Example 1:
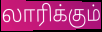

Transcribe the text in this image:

லாரிக்கும்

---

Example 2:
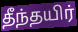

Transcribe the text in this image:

தீந்தயிர்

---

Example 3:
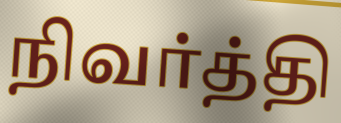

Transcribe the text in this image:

நிவர்த்தி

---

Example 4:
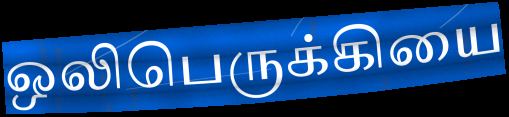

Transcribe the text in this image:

ஒலிபெருக்கியை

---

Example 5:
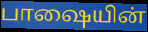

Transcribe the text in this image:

பாஷையின்